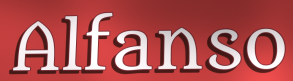
Alfanso